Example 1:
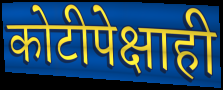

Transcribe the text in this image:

कोटीपेक्षाही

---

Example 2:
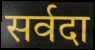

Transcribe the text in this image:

सर्वदा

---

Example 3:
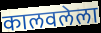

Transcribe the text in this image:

कालवलेला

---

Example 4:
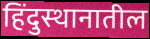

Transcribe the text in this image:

हिंदुस्थानातील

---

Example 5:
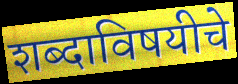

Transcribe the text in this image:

शब्दाविषयीचे